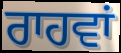
ਰਾਹਵਾਂ